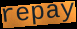
repay